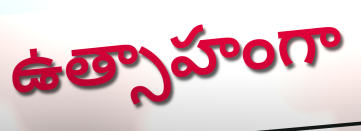
ఉత్సాహంగా